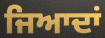
ਜਿਆਦਾਂ